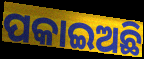
ପକାଇଅଛି